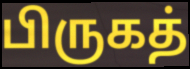
பிருகத்